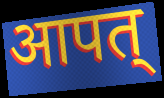
आपत्